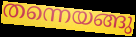
തന്നെയങ്ങു